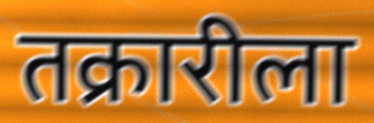
तक्रारीला